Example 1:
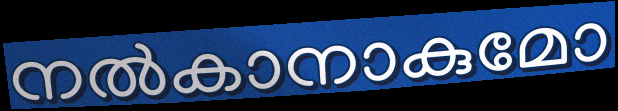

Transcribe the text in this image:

നൽകാനാകുമോ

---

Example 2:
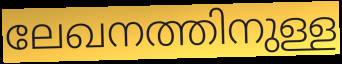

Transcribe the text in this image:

ലേഖനത്തിനുള്ള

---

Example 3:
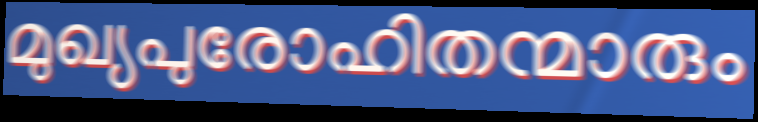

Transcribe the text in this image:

മുഖ്യപുരോഹിതന്മാരും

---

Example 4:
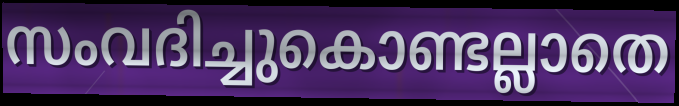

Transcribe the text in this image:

സംവദിച്ചുകൊണ്ടല്ലാതെ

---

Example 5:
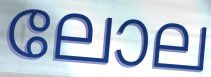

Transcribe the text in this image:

ലോല